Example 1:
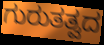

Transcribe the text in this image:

ಗುರುತತ್ವದ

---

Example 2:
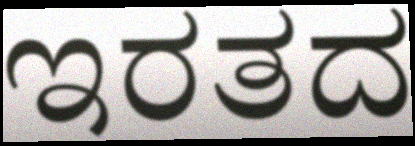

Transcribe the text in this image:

ಇರತದ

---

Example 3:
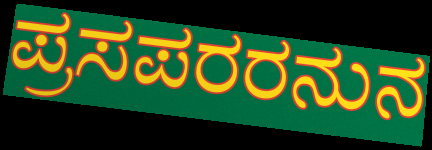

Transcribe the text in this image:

ಪ್ರಸಪರರನುನ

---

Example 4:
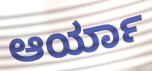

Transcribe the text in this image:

ಆರ್ಯಾ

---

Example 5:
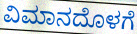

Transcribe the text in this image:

ವಿಮಾನದೊಳಗೆ